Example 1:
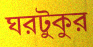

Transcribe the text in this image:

ঘরটুকুর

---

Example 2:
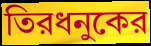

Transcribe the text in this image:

তিরধনুকের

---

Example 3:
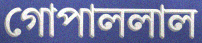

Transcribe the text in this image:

গোপাললাল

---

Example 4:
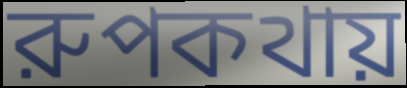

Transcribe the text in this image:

রুপকথায়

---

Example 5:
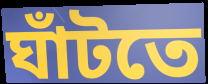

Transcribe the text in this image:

ঘাঁটতে